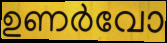
ഉണർവോ